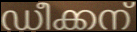
ഡീക്കന്